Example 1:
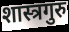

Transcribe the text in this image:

शास्त्रगुरु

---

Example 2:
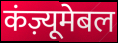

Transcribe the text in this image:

कंज़्यूमेबल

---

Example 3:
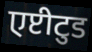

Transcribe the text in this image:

एप्टीटुड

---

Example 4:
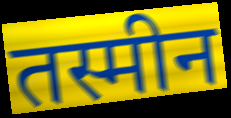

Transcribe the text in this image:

तस्मीन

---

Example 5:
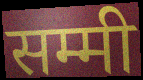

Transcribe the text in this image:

सम्मी